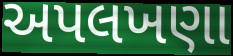
અપલખણા